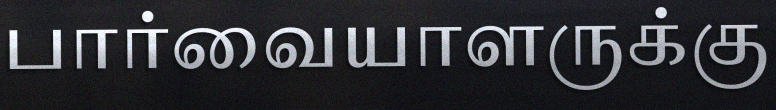
பார்வையாளருக்கு